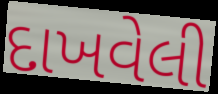
દાખવેલી